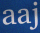
aaj